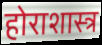
होराशास्त्र